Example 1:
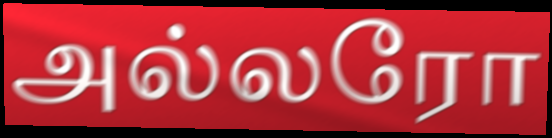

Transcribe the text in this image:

அல்லரோ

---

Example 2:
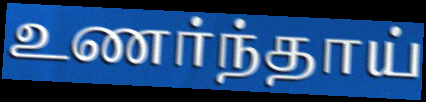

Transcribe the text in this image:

உணர்ந்தாய்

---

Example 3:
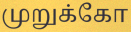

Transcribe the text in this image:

முறுக்கோ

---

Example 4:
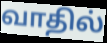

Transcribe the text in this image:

வாதில்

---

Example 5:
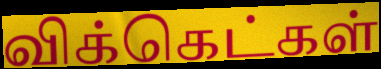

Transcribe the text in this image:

விக்கெட்கள்